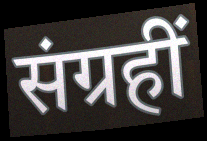
संग्रहीं